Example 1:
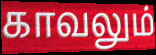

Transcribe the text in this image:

காவலும்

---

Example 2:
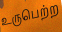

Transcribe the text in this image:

உருபெற்ற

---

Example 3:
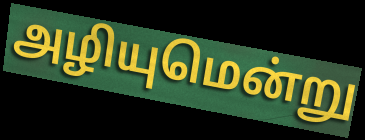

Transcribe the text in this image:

அழியுமென்று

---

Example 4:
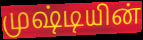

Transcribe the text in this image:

முஷ்டியின்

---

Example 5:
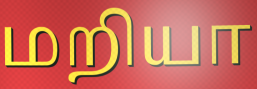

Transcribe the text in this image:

மறியா